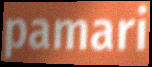
pamari